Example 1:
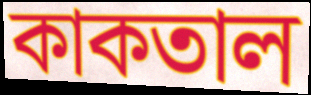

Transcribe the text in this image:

কাকতাল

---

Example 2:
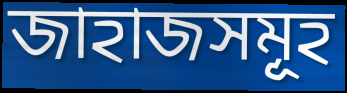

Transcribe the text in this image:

জাহাজসমূহ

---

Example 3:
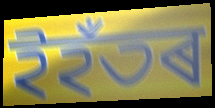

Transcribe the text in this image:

ইহঁতৰ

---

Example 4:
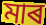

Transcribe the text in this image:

মাৰ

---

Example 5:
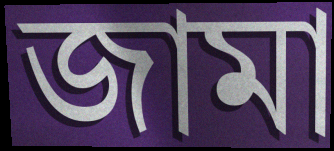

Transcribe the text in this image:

জামা